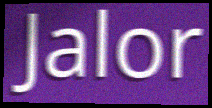
Jalor